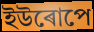
ইউৰোপে